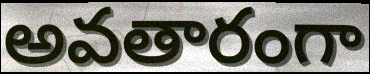
అవతారంగా